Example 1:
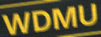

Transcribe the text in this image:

WDMU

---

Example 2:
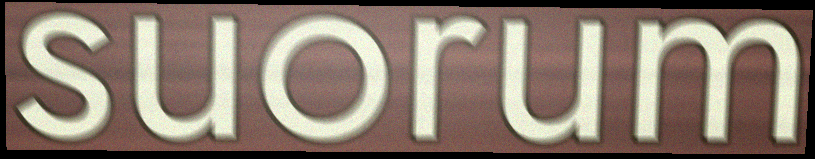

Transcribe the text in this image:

suorum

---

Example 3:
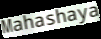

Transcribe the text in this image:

Mahashaya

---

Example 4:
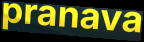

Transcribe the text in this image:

pranava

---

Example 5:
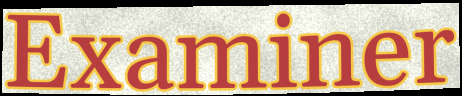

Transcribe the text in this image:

Examiner